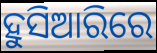
ହୁସିଆରିରେ